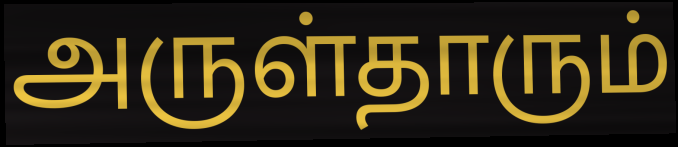
அருள்தாரும்